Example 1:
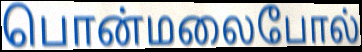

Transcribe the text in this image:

பொன்மலைபோல்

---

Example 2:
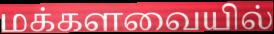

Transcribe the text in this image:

மக்களவையில்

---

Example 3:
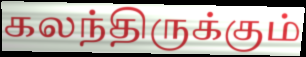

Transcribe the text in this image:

கலந்திருக்கும்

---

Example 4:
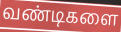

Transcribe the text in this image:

வண்டிகளை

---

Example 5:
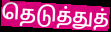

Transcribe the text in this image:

தெடுத்துத்